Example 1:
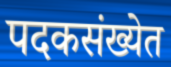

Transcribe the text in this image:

पदकसंख्येत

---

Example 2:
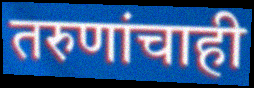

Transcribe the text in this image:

तरुणांचाही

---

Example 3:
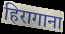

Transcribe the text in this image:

हिरागाना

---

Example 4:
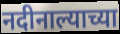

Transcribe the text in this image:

नदीनाल्याच्या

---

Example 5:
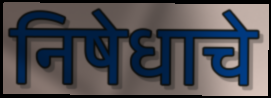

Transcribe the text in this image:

निषेधाचे